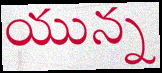
యున్న